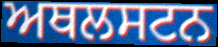
ਅਥਲਸਟਨ